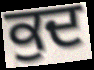
ਕੁਦ